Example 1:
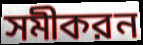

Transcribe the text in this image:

সমীকরন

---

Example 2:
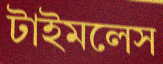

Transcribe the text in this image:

টাইমলেস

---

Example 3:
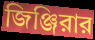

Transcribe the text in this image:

জিঞ্জিরার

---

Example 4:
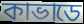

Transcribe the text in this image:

কাভাডে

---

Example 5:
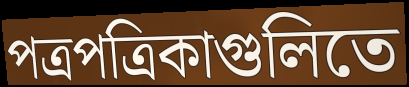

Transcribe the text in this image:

পত্রপত্রিকাগুলিতে